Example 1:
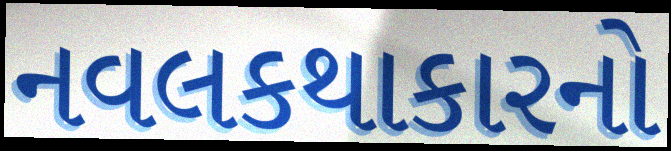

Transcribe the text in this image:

નવલકથાકારનો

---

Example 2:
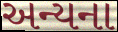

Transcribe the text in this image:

અન્યના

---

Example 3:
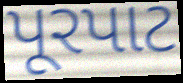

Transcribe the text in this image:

પૂરપાટ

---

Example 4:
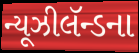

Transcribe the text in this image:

ન્યૂઝીલૅન્ડના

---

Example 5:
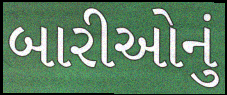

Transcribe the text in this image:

બારીઓનું